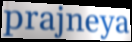
prajneya